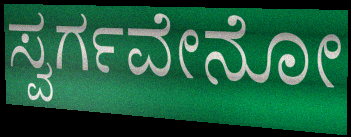
ಸ್ವರ್ಗವೇನೋ